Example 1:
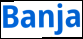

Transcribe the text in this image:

Banja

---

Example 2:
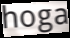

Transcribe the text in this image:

hoga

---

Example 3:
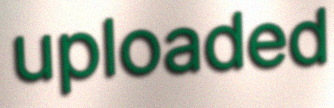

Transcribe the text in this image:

uploaded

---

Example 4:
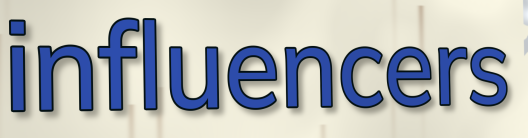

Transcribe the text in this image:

influencers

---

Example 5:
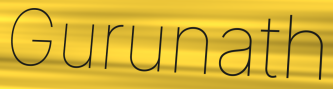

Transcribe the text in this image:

Gurunath